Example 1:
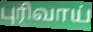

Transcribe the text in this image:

புரிவாய்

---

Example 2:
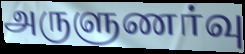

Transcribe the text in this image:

அருளுணர்வு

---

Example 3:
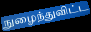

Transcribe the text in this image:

நுழைந்துவிட்ட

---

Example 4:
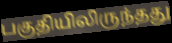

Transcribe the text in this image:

பகுதியிலிருந்தது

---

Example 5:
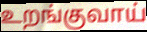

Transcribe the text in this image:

உறங்குவாய்